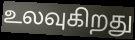
உலவுகிறது